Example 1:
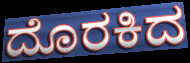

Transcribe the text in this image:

ದೊರಕಿದ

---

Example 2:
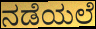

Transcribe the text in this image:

ನಡೆಯಲೆ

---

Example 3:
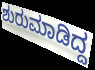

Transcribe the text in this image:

ಶುರುಮಾಡಿದ್ದ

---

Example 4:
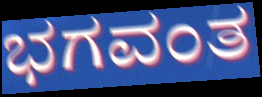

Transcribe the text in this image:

ಭಗವಂತ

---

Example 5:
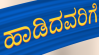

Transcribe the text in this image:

ಹಾಡಿದವರಿಗೆ